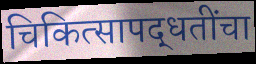
चिकित्सापद्धतींचा